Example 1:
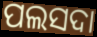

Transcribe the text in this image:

ପଲସଦା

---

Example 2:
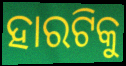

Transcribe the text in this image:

ହାରଟିକୁ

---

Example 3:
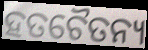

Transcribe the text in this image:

ହତଚୈତନ୍ୟ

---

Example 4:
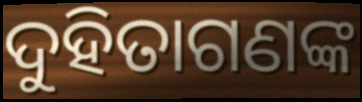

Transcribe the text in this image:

ଦୁହିତାଗଣଙ୍କ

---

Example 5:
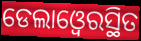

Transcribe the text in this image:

ଡେଲାଓ୍ବେରସ୍ଥିତ